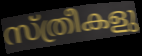
സ്ത്രീകളു